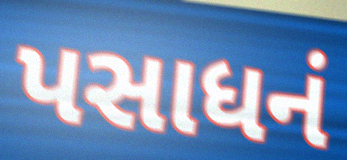
પસાધનં